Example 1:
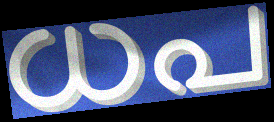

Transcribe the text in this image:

ധപ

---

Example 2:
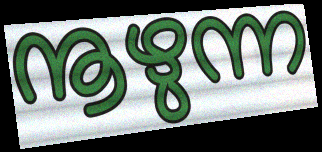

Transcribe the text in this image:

നൂഴുന്ന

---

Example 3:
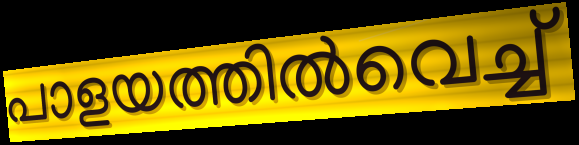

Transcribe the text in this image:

പാളയത്തിൽവെച്ച്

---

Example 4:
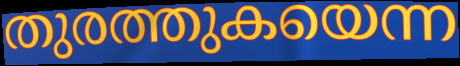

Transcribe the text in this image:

തുരത്തുകയെന്ന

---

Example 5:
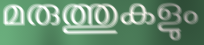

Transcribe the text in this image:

മരുത്തുകളും